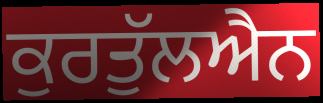
ਕੁਰਤੁੱਲਐਨ